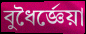
বুধৈর্জ্ঞেয়া